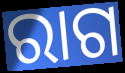
ରାଗ